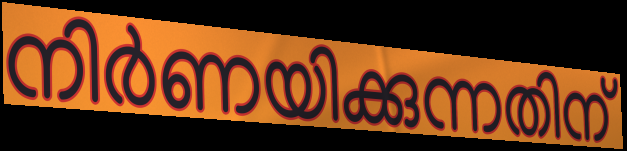
നിർണയിക്കുന്നതിന്